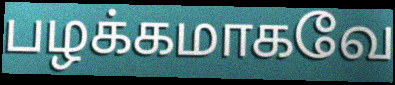
பழக்கமாகவே